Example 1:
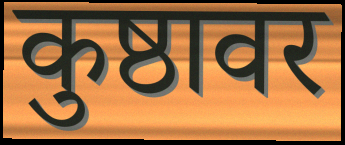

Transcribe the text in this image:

कुष्ठावर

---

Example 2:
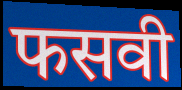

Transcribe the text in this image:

फसवी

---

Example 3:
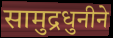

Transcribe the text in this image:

सामुद्रधुनीने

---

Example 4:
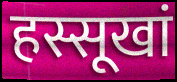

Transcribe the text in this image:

हस्सूखां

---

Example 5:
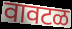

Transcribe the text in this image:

वावटळ